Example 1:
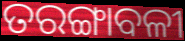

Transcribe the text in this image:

ତରଙ୍ଗାବଳୀ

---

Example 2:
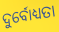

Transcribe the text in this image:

ଦୁର୍ବୋଧ୍ୟତା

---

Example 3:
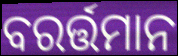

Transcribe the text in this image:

ବରର୍ତ୍ତମାନ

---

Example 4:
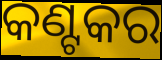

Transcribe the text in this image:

କଣ୍ଟକର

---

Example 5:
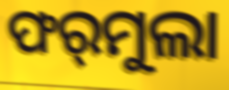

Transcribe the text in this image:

ଫର୍‌ମୁଲା